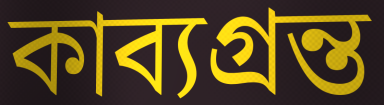
কাব্যগ্রন্ত